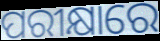
ପରୀକ୍ଷାରେ